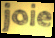
joie